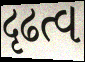
દૃઢત્વ